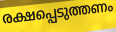
രക്ഷപ്പെടുത്തണം